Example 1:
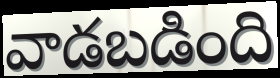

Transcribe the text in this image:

వాడబడింది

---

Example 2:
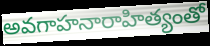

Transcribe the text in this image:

అవగాహనారాహిత్యంతో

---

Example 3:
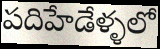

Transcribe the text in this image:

పదిహేడేళ్ళలో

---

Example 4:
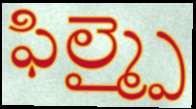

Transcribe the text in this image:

ఫిల్మ్పై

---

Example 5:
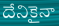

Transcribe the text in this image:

దేనికైనా